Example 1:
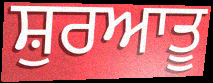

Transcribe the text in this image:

ਸ਼ੁਰਆਤੂ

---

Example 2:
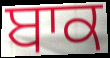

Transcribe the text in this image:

ਬਾਕ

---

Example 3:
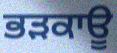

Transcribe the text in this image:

ਭੜਕਾਊ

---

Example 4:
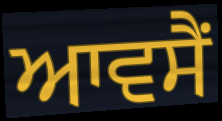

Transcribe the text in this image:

ਆਵਸੈਂ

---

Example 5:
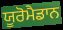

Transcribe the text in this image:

ਯੂਰੋਮੈਡਾਨ